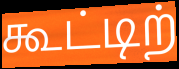
கூட்டிற்